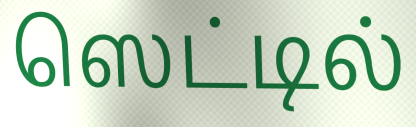
ஸெட்டில்